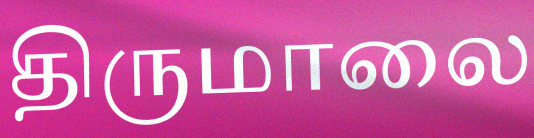
திருமாலை